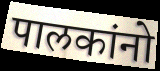
पालकांनो